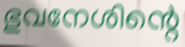
ഭുവനേശിന്റെ